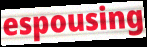
espousing